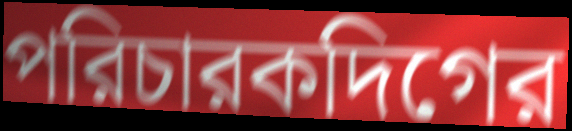
পরিচারকদিগের